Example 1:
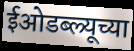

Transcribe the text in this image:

ईओडब्ल्यूच्या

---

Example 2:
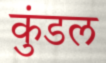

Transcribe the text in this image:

कुंडल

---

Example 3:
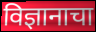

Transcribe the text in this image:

विज्ञानाचा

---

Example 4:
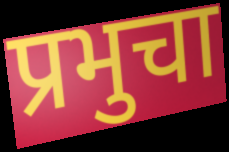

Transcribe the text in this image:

प्रभुचा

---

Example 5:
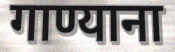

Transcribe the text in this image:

गाण्याना